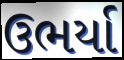
ઉભર્યા